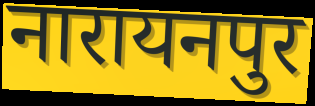
नारायनपुर